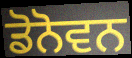
ਡੋਨੋਵਨ